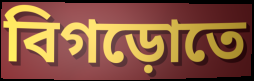
বিগড়োতে